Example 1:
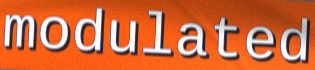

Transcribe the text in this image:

modulated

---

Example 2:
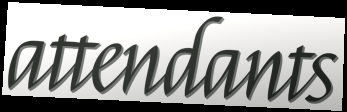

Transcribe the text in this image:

attendants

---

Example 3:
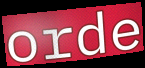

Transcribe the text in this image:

orde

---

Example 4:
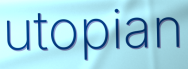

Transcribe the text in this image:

utopian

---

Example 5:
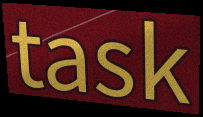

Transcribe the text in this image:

task